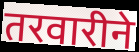
तरवारीने